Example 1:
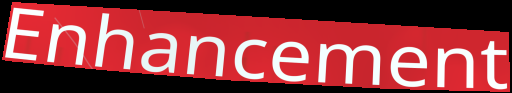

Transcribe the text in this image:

Enhancement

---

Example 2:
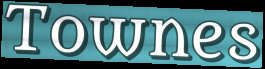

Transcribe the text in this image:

Townes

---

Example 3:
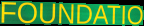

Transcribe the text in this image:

FOUNDATIO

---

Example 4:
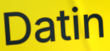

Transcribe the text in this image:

Datin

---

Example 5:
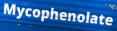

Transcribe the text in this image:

Mycophenolate